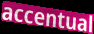
accentual